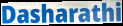
Dasharathi